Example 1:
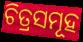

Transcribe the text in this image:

ଚିତ୍ରସମୂହ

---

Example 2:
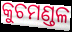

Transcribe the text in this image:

କୁଚମଣ୍ଡଳ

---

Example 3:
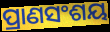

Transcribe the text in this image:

ପ୍ରାଣସଂଶୟ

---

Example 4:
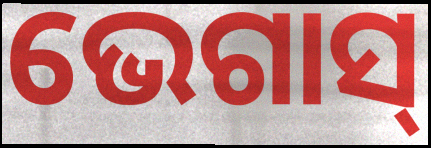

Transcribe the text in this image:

ଭେଗାସ୍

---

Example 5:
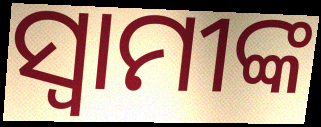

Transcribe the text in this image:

ସ୍ୱାମୀଙ୍କ